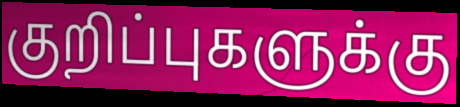
குறிப்புகளுக்கு